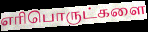
எரிபொருட்களை